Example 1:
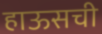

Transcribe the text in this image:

हाऊसची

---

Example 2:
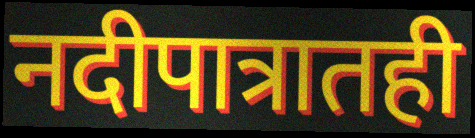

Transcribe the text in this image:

नदीपात्रातही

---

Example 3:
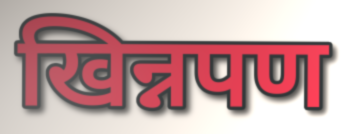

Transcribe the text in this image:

खिन्नपण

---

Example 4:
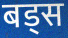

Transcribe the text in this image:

बड्स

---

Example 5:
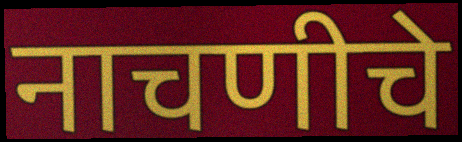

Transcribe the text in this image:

नाचणीचे